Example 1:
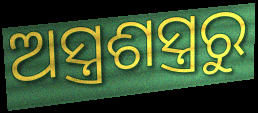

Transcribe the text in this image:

ଅସ୍ତ୍ରଶସ୍ତ୍ରରୁ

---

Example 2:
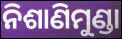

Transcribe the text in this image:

ନିଶାଣିମୁଣ୍ଡା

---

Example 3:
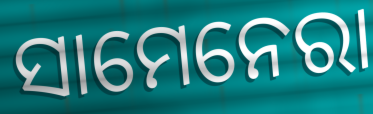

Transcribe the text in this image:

ସାମେନେରା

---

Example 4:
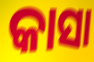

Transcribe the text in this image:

କାସା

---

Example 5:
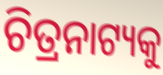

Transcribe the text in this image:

ଚିତ୍ରନାଟ୍ୟକୁ